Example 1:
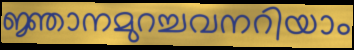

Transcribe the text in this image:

ജ്ഞാനമുറച്ചവനറിയാം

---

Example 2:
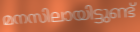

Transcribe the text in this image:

മനസിലായിട്ടുണ്ട്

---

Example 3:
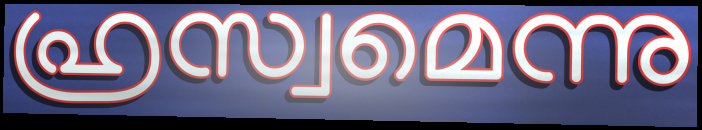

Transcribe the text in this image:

ഹ്രസ്വമെന്നു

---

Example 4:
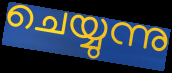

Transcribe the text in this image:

ചെയ്യുന്നു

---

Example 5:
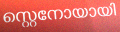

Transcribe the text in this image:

സ്റ്റെനോയായി